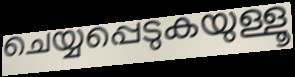
ചെയ്യപ്പെടുകയുള്ളൂ